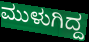
ಮುಳುಗಿದ್ದ